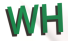
WH